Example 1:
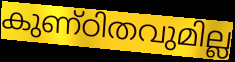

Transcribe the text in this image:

കുണ്ഠിതവുമില്ല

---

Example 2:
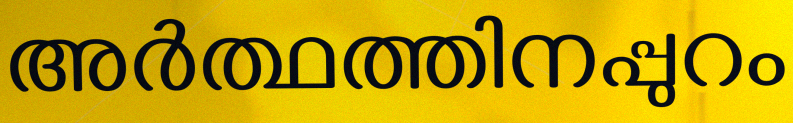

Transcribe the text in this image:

അർത്ഥത്തിനപ്പുറം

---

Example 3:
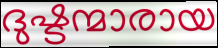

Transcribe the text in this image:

ദുഷ്ടന്മാരായ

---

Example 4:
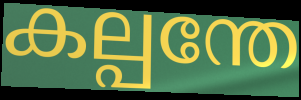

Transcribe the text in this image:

കല്പന്തേ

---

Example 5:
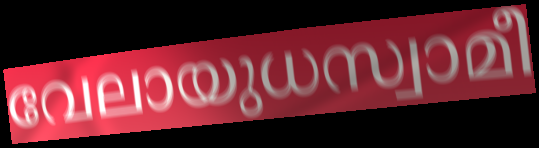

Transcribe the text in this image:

വേലായുധസ്വാമീ